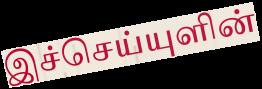
இச்செய்யுளின்